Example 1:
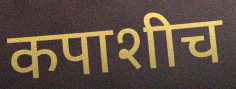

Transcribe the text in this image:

कपाशीच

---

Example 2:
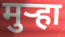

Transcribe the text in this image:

मुऱ्हा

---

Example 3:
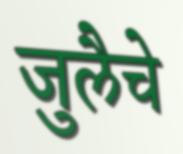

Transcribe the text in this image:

जुलैचे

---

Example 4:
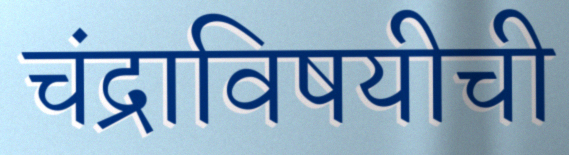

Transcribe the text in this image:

चंद्राविषयीची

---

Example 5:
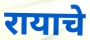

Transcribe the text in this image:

रायाचे